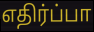
எதிர்ப்பா